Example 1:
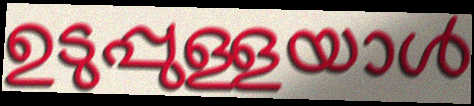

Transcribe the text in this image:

ഉടുപ്പുള്ളയാൾ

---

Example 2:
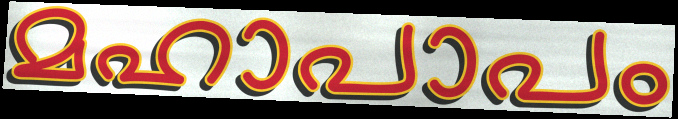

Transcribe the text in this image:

മഹാപാപം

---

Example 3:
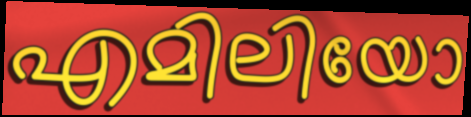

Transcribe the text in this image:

എമിലിയോ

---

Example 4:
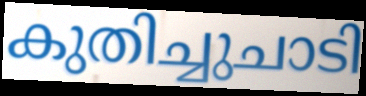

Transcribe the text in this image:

കുതിച്ചുചാടി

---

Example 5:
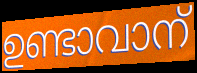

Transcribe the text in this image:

ഉണ്ടാവാന്